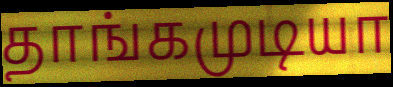
தாங்கமுடியா